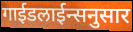
गाईडलाईन्सनुसार